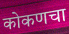
कोकणचा